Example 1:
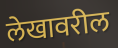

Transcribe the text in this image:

लेखावरील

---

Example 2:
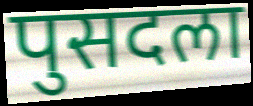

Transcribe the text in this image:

पुसदला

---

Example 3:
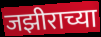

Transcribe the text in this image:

जझीराच्या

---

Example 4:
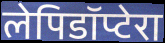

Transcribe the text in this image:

लेपिडॉप्टेरा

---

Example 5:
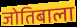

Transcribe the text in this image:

जोतिबाला